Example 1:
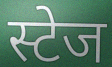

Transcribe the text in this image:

स्टेज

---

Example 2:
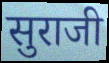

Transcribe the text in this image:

सुराजी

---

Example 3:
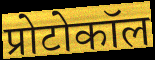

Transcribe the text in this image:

प्रोटोकॉल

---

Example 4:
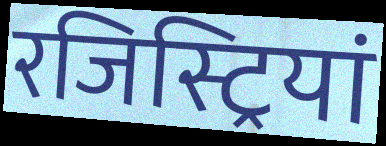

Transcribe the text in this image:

रजिस्ट्रियां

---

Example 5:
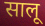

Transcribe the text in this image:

सालू